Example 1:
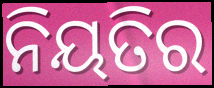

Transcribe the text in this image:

ନିୟତିର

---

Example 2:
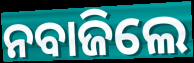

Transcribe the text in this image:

ନବାଜିଲେ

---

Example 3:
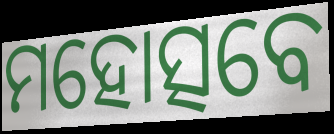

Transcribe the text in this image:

ମହୋତ୍ସବେ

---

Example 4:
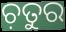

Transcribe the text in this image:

ଚ଼ତୁର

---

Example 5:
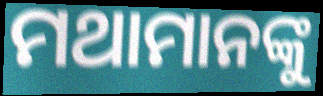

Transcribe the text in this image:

ମଥାମାନଙ୍କୁ